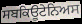
ਸਬਕਿਊਟੇਨਿਅਸ